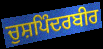
ਚੁਸ਼ਪਿੰਦਰਬੀਰ